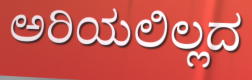
ಅರಿಯಲಿಲ್ಲದ